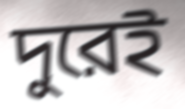
দুরেই